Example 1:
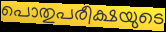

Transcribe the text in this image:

പൊതുപരീക്ഷയുടെ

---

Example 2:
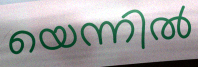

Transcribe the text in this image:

യെന്നിൽ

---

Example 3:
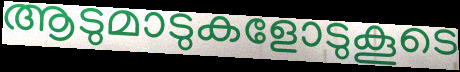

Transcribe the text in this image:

ആടുമാടുകളോടുകൂടെ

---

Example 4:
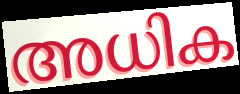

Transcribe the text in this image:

അധിക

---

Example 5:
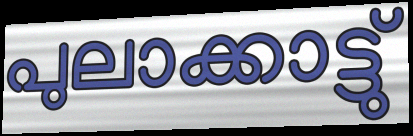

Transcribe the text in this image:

പുലാക്കാട്ടു്